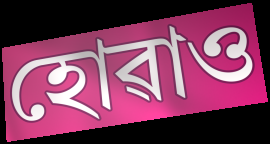
হোৱাও